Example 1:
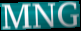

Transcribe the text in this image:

MNG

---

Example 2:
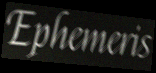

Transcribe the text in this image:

Ephemeris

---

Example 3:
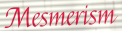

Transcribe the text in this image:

Mesmerism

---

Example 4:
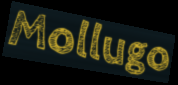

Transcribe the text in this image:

Mollugo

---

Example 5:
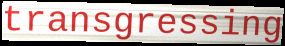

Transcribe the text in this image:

transgressing